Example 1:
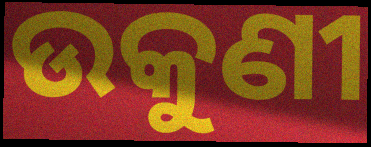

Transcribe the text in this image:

ଉକୁଣୀ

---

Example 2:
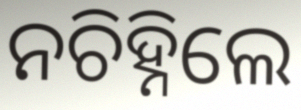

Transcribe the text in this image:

ନଚିହ୍ନିଲେ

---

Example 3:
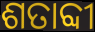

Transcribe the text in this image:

ଶତାବ୍ଦୀ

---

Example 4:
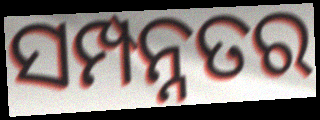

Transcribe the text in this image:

ସମ୍ପନ୍ନତର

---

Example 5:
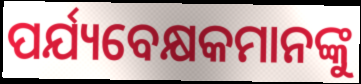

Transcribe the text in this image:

ପର୍ଯ୍ୟବେକ୍ଷକମାନଙ୍କୁ